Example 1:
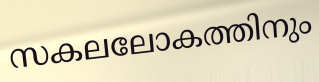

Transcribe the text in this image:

സകലലോകത്തിനും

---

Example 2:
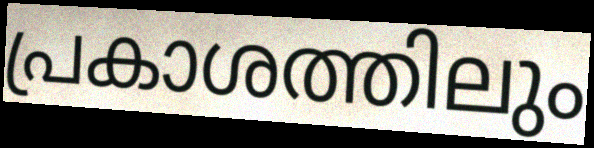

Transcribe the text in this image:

പ്രകാശത്തിലും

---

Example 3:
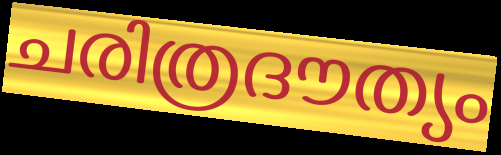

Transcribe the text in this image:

ചരിത്രദൗത്യം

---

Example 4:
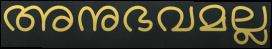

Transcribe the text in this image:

അനുഭവമല്ല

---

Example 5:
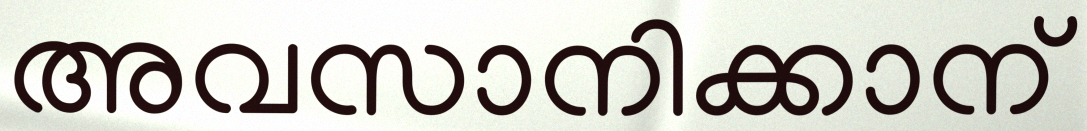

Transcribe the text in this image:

അവസാനിക്കാന്